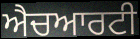
ਐਚਆਰਟੀ